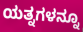
ಯತ್ನಗಳನ್ನೂ